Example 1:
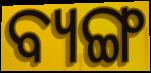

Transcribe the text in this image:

ବ୍ୟଙ୍ଗ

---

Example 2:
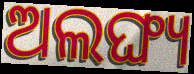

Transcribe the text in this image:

ଅଲଙ୍ଘ୍ୟ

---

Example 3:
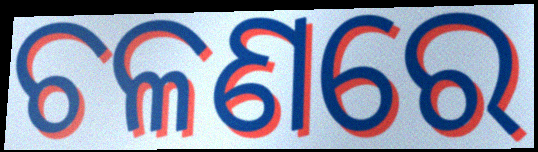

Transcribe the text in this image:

ଚଳଣରେ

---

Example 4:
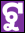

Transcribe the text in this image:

ଟୁ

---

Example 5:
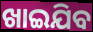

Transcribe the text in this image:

ଖାଇଯିବ